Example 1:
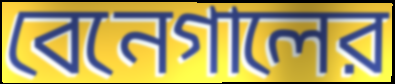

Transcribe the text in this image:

বেনেগালের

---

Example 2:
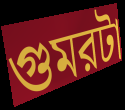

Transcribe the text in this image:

গুমরটা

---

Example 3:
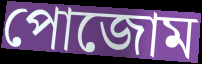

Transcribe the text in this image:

পোজোম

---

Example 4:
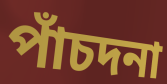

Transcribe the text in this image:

পাঁচদনা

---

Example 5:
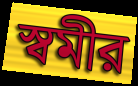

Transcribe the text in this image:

স্বমীর